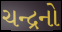
ચન્દ્રનો